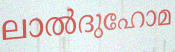
ലാൽദുഹോമ